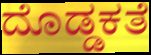
ದೊಡ್ಡಕತೆ